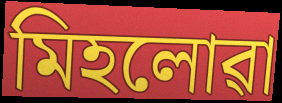
মিহলোৱা